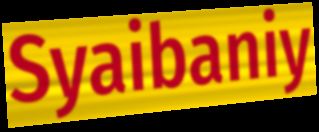
Syaibaniy